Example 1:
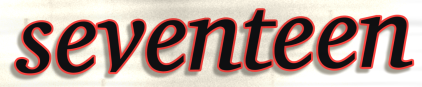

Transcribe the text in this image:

seventeen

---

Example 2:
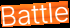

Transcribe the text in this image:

Battle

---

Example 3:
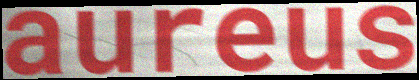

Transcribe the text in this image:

aureus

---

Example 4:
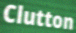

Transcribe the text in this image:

Clutton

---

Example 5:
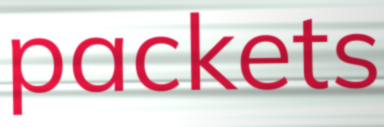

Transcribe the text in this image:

packets